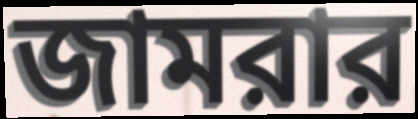
জামরার